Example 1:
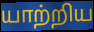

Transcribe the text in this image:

யாற்றிய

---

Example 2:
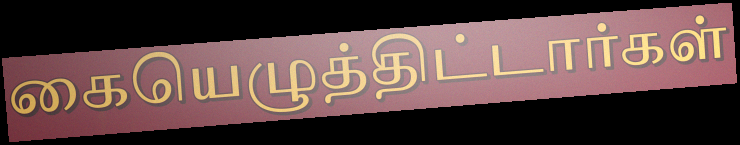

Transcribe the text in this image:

கையெழுத்திட்டார்கள்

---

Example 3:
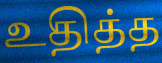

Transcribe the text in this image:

உதித்த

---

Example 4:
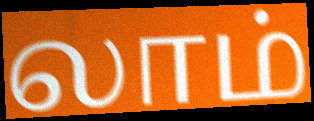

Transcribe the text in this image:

லாம்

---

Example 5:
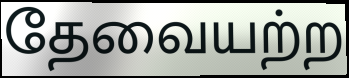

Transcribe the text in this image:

தேவையற்ற